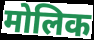
मोलिक